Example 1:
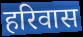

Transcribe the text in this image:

हरिवास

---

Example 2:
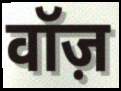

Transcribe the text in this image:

वॉज़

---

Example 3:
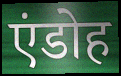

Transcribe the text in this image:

एंडोह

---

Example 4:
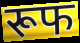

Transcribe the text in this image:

रूफ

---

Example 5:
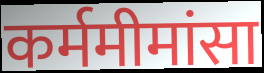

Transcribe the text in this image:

कर्ममीमांसा